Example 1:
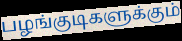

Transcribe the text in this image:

பழங்குடிகளுக்கும்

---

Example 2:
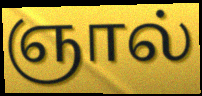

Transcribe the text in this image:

ஞால்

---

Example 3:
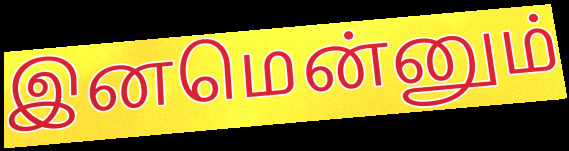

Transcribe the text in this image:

இனமென்னும்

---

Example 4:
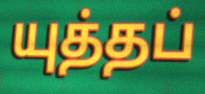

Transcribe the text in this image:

யுத்தப்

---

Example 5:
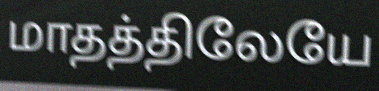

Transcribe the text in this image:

மாதத்திலேயே